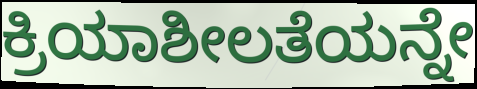
ಕ್ರಿಯಾಶೀಲತೆಯನ್ನೇ